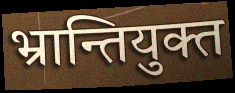
भ्रान्तियुक्त